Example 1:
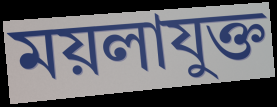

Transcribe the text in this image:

ময়লাযুক্ত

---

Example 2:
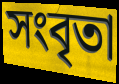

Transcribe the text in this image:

সংবৃতা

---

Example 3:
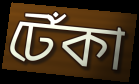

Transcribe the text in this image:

টেঁকা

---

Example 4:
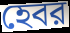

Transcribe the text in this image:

হেবর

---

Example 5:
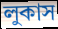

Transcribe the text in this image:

লুকাস